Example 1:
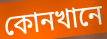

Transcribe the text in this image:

কোনখানে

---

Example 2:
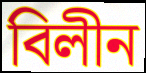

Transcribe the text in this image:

বিলীন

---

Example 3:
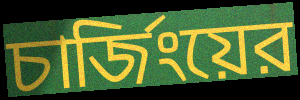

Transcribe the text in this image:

চার্জিংয়ের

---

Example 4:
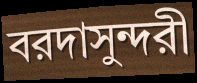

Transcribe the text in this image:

বরদাসুন্দরী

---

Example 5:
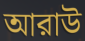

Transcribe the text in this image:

আরাউ